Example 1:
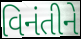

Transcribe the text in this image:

વિનંતીને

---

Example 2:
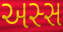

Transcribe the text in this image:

અસ્સ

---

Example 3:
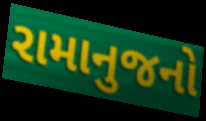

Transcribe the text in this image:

રામાનુજનો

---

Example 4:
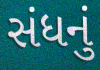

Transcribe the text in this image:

સંધનું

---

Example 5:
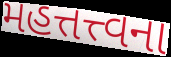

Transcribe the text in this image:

મહત્તત્ત્વના